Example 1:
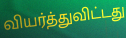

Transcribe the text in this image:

வியர்த்துவிட்டது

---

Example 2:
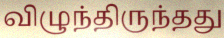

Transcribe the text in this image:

விழுந்திருந்தது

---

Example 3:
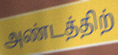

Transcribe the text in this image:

அண்டத்திற்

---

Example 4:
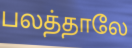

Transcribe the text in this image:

பலத்தாலே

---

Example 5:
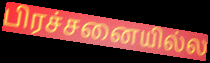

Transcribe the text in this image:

பிரச்சனையில்ல